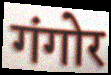
गंगोर